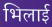
भिलाई